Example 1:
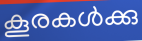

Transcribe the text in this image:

കൂരകൾക്കു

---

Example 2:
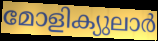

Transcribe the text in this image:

മോളിക്യുലാർ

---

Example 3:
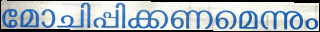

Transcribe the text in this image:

മോചിപ്പിക്കണമെന്നും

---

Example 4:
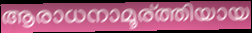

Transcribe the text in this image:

ആരാധനാമൂര്ത്തിയായ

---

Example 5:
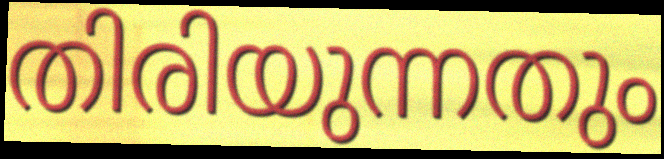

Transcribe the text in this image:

തിരിയുന്നതും